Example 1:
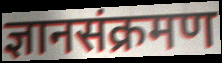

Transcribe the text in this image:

ज्ञानसंक्रमण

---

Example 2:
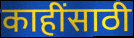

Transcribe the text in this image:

काहींसाठी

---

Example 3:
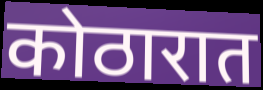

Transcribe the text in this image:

कोठारात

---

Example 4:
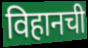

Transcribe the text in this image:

विहानची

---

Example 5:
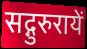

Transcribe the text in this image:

सद्गुरुरायें